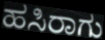
ಹಸಿರಾಗು